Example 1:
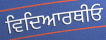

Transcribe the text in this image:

ਵਿਦਿਆਰਥੀਓ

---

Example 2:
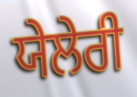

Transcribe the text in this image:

ਯੇਲੇਰੀ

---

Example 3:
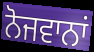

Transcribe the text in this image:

ਨੋਜਵਾਨਾਂ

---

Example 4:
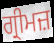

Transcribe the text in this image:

ਗ੍ਰੀਮਜ਼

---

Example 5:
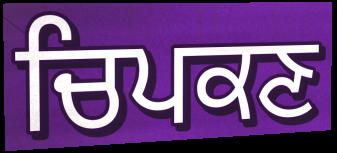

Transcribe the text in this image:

ਚਿਪਕਣ